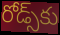
రోడ్స్‌కు